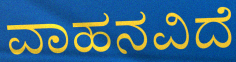
ವಾಹನವಿದೆ